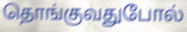
தொங்குவதுபோல்